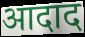
आदाद